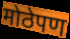
मोठेपण